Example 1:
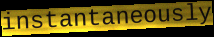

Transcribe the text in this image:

instantaneously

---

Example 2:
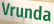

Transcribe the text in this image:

Vrunda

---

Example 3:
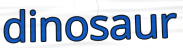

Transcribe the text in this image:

dinosaur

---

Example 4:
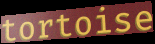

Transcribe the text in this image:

tortoise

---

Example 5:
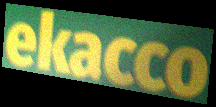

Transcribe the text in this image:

ekacco